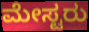
ಮೇಸ್ಟರು